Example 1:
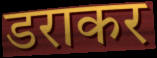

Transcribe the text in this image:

डराकर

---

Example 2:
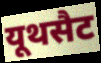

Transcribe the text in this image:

यूथसैट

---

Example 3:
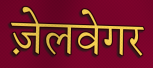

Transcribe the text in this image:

ज़ेलवेगर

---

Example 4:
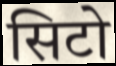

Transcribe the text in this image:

सिटो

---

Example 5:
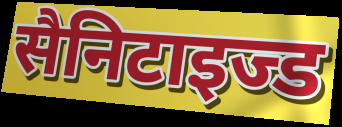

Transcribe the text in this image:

सैनिटाइज्ड